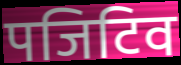
पजिटिव